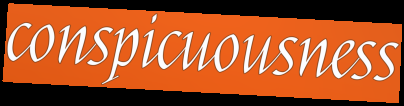
conspicuousness